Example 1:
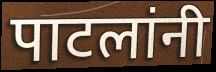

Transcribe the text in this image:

पाटलांनी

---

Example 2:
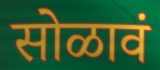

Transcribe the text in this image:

सोळावं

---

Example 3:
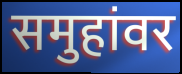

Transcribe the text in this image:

समुहांवर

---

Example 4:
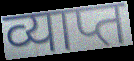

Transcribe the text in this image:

व्याप्त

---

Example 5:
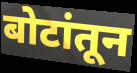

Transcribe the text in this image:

बोटांतून